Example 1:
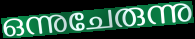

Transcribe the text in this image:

ഒന്നുചേരുന്നു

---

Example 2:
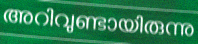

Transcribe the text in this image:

അറിവുണ്ടായിരുന്നു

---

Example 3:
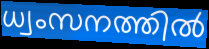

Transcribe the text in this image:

ധ്വംസനത്തിൽ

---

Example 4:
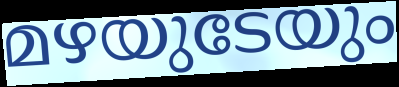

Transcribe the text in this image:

മഴയുടേയും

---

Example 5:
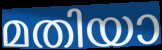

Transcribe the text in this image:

മതിയാ